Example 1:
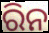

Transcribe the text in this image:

ରିନ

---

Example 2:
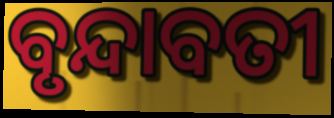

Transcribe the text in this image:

ବୃନ୍ଦାବତୀ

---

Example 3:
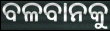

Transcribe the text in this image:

ବଳବାନକୁ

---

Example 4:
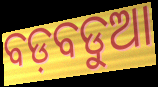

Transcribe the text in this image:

ବଡ଼ବଡୁଆ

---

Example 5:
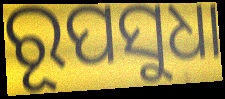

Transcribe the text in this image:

ରୂପସୁଧା